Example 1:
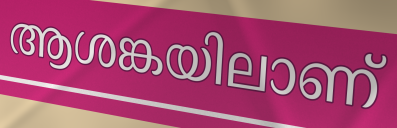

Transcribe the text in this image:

ആശങ്കയിലാണ്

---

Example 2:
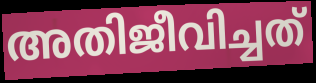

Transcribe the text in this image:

അതിജീവിച്ചത്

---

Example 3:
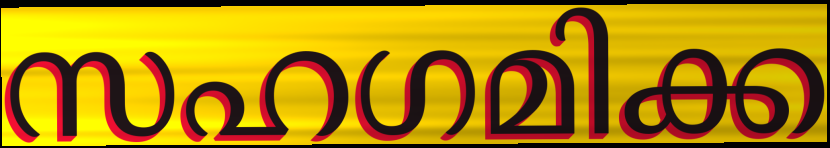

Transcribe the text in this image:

സഹഗമിക്ക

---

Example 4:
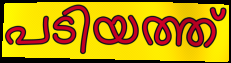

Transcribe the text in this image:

പടിയത്ത്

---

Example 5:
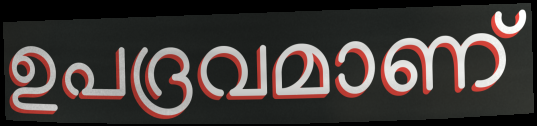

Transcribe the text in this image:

ഉപദ്രവമാണ്